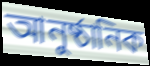
আনুষ্ঠানিক